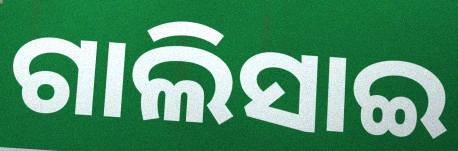
ଗାଲିସାଇ